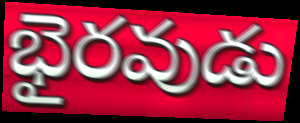
భైరవుడు